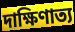
দাক্ষিণাত্য